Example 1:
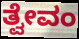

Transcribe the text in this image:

ತ್ವೇವಂ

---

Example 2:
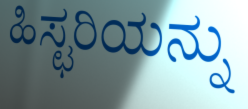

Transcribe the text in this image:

ಹಿಸ್ಟರಿಯನ್ನು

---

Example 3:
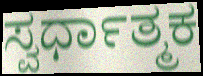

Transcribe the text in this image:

ಸ್ವರ್ಧಾತ್ಮಕ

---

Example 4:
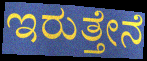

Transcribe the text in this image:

ಇರುತ್ತೇನೆ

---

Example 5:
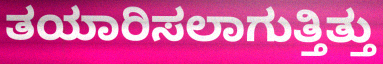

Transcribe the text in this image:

ತಯಾರಿಸಲಾಗುತ್ತಿತ್ತು